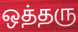
ஒத்தரு